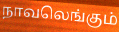
நாவலெங்கும்